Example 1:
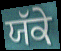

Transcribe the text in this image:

ਯੱਕੇ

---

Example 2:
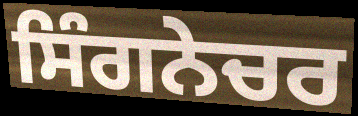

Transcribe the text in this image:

ਸਿੰਗਨੇਚਰ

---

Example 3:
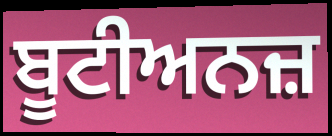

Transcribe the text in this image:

ਬੂਟੀਅਨਜ਼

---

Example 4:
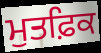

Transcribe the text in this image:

ਮੁਤਫ਼ਿਕ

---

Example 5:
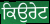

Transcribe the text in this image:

ਕਿਉਰੇਟ